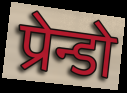
प्रेन्डो